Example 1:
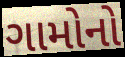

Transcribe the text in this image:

ગામોનો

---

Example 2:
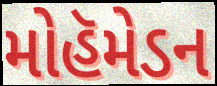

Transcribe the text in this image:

મોહૅમેડન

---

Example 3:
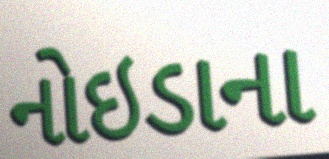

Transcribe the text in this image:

નોઇડાના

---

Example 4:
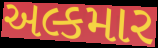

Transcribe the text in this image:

અલ્કમાર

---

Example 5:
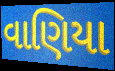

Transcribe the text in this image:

વાણિયા